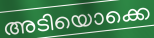
അടിയൊക്കെ